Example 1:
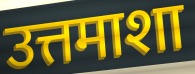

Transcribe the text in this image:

उत्तमाशा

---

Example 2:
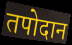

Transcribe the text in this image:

तपोदान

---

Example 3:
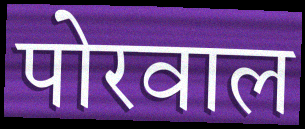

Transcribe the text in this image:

पोरवाल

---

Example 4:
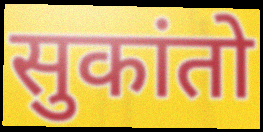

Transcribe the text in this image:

सुकांतो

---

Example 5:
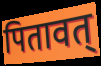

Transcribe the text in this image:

पितावत्